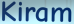
Kiram